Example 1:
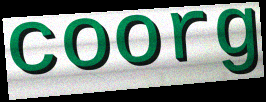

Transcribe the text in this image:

coorg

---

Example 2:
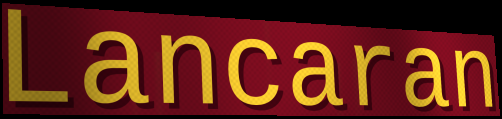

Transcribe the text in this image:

Lancaran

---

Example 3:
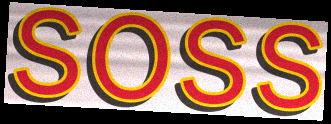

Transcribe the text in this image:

soss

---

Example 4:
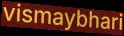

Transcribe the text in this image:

vismaybhari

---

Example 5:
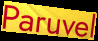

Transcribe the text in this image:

Paruvel